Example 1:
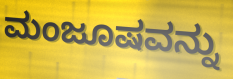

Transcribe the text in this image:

ಮಂಜೂಷವನ್ನು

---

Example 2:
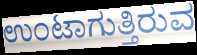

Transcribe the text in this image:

ಉಂಟಾಗುತ್ತಿರುವ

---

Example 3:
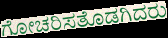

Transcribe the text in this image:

ಗೋಚರಿಸತೊಡಗಿದರು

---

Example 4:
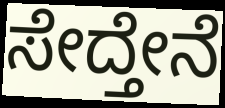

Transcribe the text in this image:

ಸೇದ್ತೇನೆ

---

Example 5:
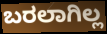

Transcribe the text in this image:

ಬರಲಾಗಿಲ್ಲ